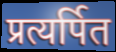
प्रत्यर्पित